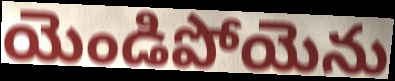
యెండిపోయెను